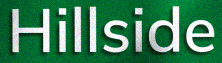
Hillside